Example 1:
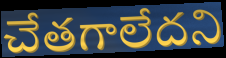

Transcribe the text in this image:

చేతగాలేదని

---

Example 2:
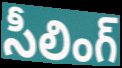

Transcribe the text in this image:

సీలింగ్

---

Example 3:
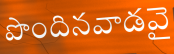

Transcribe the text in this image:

పొందినవాడవై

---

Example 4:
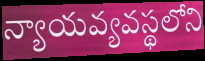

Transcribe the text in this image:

న్యాయవ్యవస్థలోని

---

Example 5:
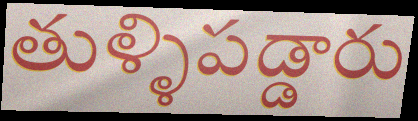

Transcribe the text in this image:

తుళ్ళిపడ్డారు